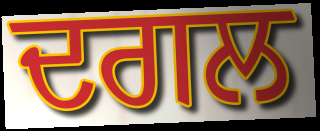
ਦਗਲ